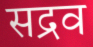
सद्रव